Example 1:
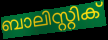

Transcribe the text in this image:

ബാലിസ്റ്റിക്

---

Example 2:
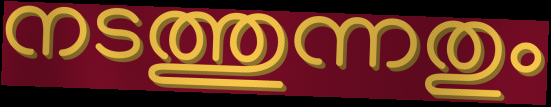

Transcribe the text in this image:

നടത്തുന്നതും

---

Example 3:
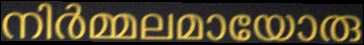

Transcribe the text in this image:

നിർമ്മലമായോരു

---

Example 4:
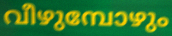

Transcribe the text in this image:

വീഴുമ്പോഴും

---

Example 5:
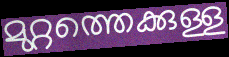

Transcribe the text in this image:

മുറ്റത്തെക്കുള്ള